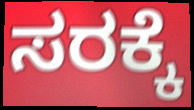
ಸರಕ್ಕೆ